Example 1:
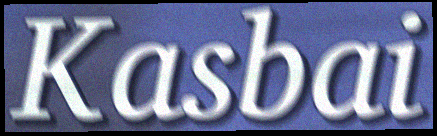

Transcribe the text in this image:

Kasbai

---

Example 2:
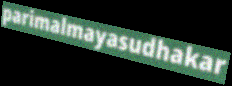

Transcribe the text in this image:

parimalmayasudhakar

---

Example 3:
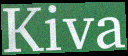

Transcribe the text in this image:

Kiva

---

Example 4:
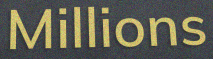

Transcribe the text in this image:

Millions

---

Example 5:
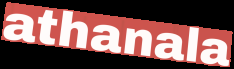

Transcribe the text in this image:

athanala